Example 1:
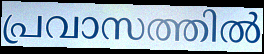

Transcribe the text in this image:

പ്രവാസത്തിൽ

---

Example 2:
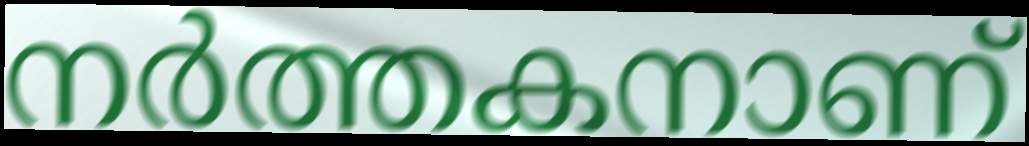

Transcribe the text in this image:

നർത്തകനാണ്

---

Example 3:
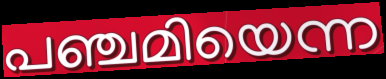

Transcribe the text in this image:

പഞ്ചമിയെന്ന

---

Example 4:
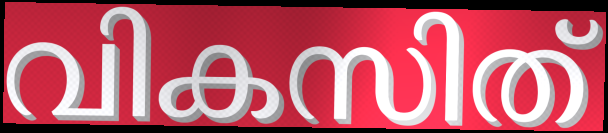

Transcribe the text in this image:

വികസിത്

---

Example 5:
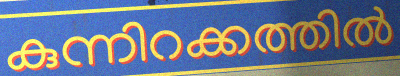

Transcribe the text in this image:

കുന്നിറക്കത്തിൽ